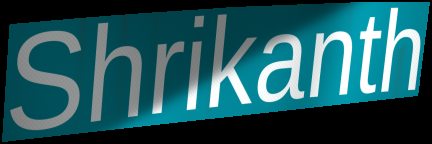
Shrikanth